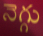
నెగ్గు